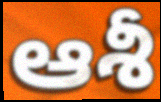
ఆశీ